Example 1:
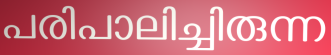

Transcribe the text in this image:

പരിപാലിച്ചിരുന്ന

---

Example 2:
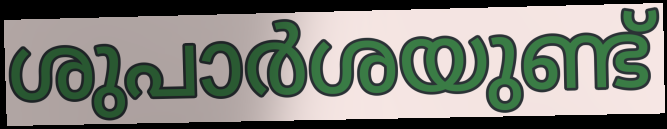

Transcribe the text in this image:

ശുപാർശയുണ്ട്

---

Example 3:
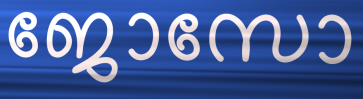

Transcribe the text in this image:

ജോസോ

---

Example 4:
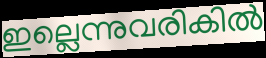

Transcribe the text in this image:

ഇല്ലെന്നുവരികിൽ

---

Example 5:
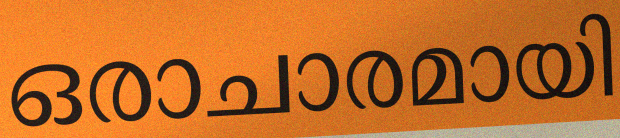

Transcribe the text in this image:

ഒരാചാരമായി